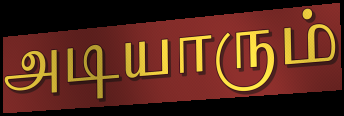
அடியாரும்